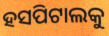
ହସପିଟାଲକୁ